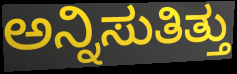
ಅನ್ನಿಸುತಿತ್ತು